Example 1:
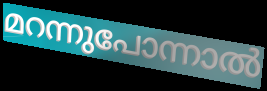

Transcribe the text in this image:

മറന്നുപോന്നാൽ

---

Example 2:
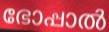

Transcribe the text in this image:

ഭോപ്പാൽ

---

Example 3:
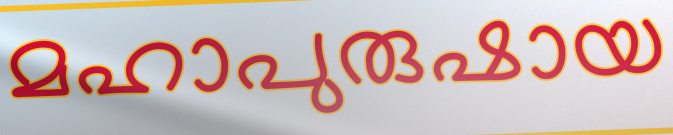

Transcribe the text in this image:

മഹാപുരുഷായ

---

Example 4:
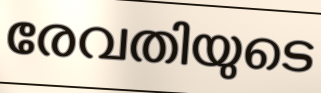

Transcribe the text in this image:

രേവതിയുടെ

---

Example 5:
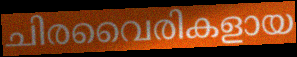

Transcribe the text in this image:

ചിരവൈരികളായ